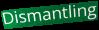
Dismantling